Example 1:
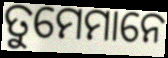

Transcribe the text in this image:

ତୁମେମାନେ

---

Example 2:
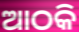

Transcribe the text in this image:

ଆଠକି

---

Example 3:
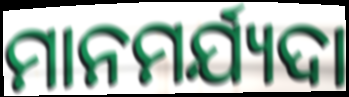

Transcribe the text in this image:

ମାନମର୍ଯ୍ୟଦା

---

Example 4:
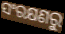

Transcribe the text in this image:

ସଂରକ୍ଷଣରୁ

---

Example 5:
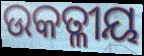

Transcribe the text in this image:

ଉକତ୍ଳୀୟ